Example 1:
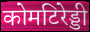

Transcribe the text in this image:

कोमटिरेड्डी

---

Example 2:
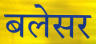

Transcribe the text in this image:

बलेसर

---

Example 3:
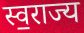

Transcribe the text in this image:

स्व॒राज्य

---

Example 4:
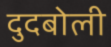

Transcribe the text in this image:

दुदबोली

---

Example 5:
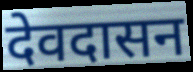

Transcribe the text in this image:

देवदासन